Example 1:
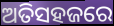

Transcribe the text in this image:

ଅତିସହଜରେ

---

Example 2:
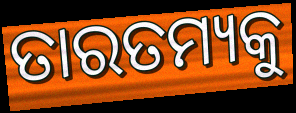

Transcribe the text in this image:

ତାରତମ୍ୟକୁ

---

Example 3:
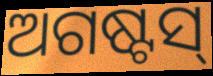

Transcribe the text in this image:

ଅଗଷ୍ଟସ୍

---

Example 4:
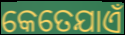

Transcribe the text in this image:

କେତେଯାଏଁ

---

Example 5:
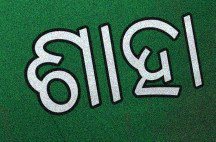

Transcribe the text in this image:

ଶାହା